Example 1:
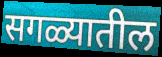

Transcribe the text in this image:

सगळ्यातील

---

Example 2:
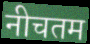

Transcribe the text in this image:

नीचतम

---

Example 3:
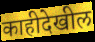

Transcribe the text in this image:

काहीदेखील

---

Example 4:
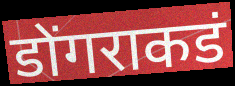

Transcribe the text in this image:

डोंगराकडं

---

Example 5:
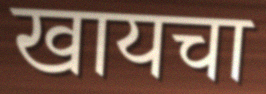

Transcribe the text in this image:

खायचा